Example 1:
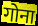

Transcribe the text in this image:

गोना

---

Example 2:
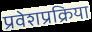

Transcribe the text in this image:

प्रवेशप्रक्रिया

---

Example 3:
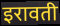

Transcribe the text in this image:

इरावती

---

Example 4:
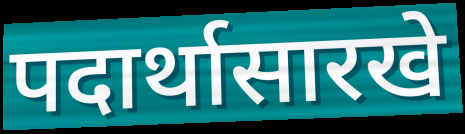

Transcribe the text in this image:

पदार्थासारखे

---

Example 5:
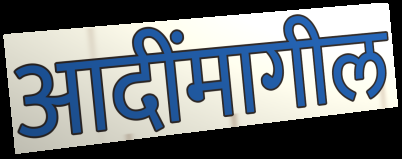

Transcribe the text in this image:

आदींमागील